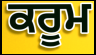
ਕਰੂਮ